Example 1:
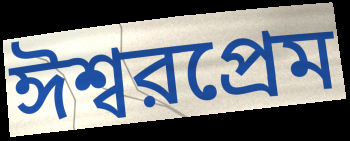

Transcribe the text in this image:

ঈশ্বরপ্রেম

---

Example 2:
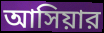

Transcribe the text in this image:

আসিয়ার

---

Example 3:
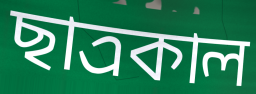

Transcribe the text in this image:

ছাত্রকাল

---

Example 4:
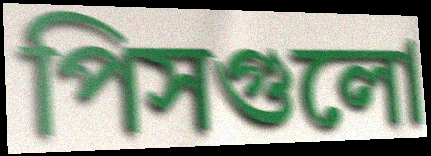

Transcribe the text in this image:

পিসগুলো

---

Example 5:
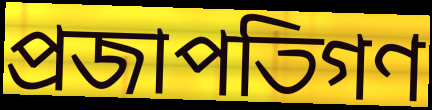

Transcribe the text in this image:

প্রজাপতিগণ